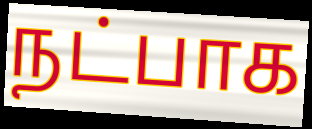
நட்பாக